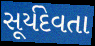
સૂર્યદેવતા